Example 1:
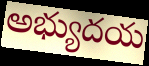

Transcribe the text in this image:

అభ్యుదయ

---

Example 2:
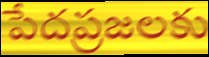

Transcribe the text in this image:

పేదప్రజలకు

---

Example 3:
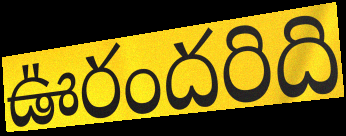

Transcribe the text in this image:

ఊరందరిది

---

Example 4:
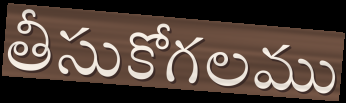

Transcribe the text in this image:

తీసుకోగలము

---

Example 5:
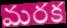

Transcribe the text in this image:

మరక